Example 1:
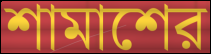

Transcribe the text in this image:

শামাশের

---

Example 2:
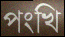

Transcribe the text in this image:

পংখি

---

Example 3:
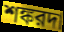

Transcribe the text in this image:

শঙ্করদা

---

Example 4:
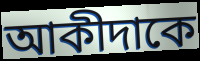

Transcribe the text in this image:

আকীদাকে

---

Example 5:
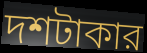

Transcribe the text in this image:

দশটাকার